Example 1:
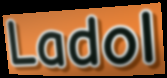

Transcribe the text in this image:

Ladol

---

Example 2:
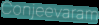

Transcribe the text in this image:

Conjeevaram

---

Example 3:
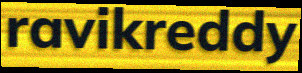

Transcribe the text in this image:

ravikreddy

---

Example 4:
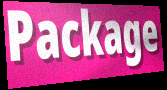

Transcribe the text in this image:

Package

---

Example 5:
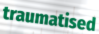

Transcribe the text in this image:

traumatised